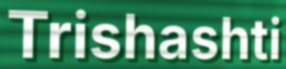
Trishashti